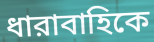
ধারাবাহিকে